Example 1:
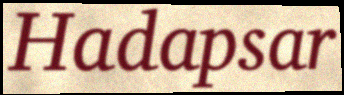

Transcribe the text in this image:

Hadapsar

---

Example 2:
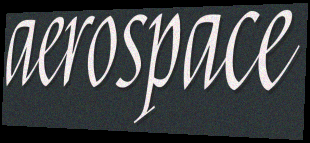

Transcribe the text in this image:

aerospace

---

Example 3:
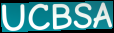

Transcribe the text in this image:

UCBSA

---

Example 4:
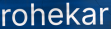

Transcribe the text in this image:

rohekar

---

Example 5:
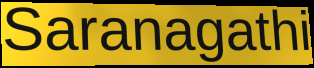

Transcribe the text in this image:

Saranagathi